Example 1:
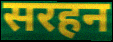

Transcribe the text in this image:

सरहन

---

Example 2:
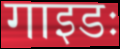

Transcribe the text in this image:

गाइडः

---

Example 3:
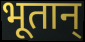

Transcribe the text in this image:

भूतान्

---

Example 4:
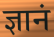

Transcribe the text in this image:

ज्ञानं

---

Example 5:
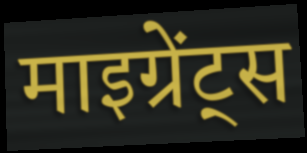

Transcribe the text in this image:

माइग्रेंट्स